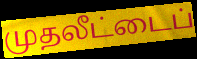
முதலீட்டைப்